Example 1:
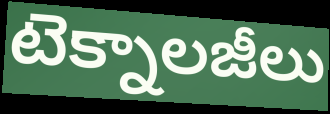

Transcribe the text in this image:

టెక్నాలజీలు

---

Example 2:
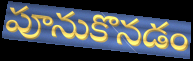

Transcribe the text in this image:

పూనుకొనడం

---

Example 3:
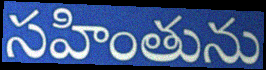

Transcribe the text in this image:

సహింతును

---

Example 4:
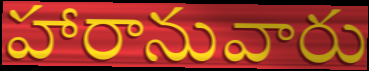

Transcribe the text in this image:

హారానువారు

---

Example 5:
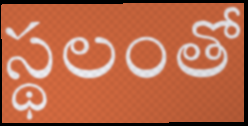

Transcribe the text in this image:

స్థలంతో